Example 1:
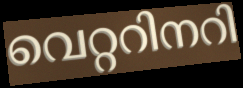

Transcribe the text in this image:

വെറ്ററിനറി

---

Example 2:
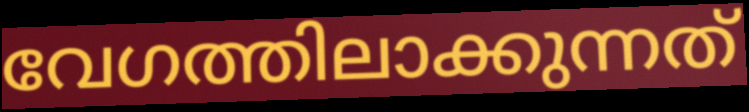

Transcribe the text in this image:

വേഗത്തിലാക്കുന്നത്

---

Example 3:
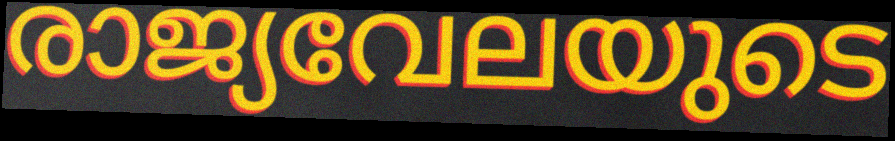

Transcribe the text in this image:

രാജ്യവേലയുടെ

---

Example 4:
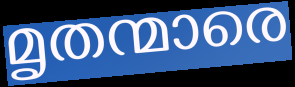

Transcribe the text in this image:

മൃതന്മാരെ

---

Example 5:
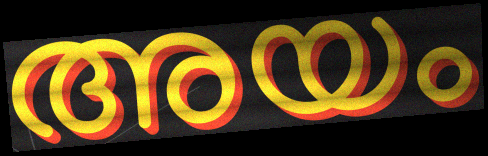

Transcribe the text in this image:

അയം